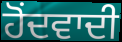
ਹੋਂਦਵਾਦੀ